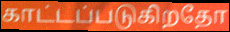
காட்டப்படுகிறதோ